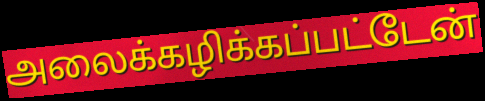
அலைக்கழிக்கப்பட்டேன்